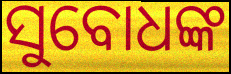
ସୁବୋଧଙ୍କ